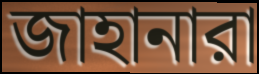
জাহানারা